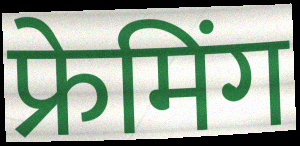
फ्रेमिंग